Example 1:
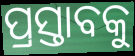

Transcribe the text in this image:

ପ୍ରସ୍ତାବକୁ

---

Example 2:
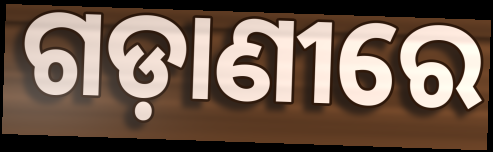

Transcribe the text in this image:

ଗଡ଼ାଣୀରେ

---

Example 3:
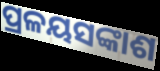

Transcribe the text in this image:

ପ୍ରଳୟସଙ୍କାଶ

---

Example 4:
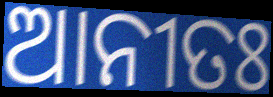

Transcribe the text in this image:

ଆନୀତଃ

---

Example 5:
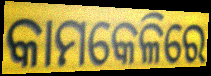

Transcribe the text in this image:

କାମକେଳିରେ